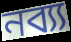
নব্য্য